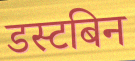
डस्टबिन